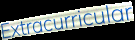
Extracurricular